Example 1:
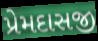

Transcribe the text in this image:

પ્રેમદાસજી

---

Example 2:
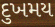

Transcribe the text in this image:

દુખમય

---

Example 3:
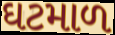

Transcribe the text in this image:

ઘટમાળ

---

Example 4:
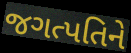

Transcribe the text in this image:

જગત્પતિને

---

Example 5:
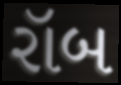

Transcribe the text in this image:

રૉબ